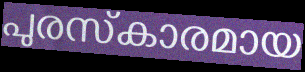
പുരസ്‌കാരമായ